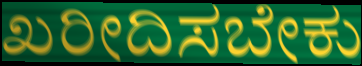
ಖರೀದಿಸಬೇಕು